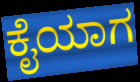
ಕೈಯಾಗ